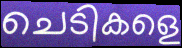
ചെടികളെ